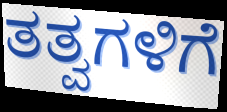
ತತ್ವಗಳಿಗೆ